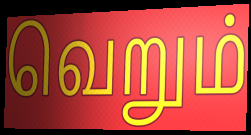
வெறும்